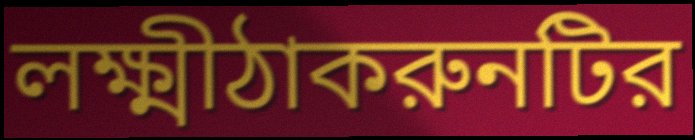
লক্ষ্মীঠাকরুনটির